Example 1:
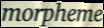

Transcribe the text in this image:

morpheme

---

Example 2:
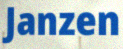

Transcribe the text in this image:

Janzen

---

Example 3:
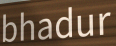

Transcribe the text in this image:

bhadur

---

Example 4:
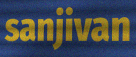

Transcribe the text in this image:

sanjivan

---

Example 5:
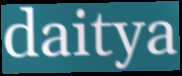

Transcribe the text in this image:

daitya